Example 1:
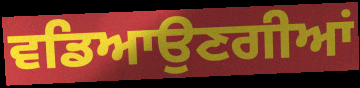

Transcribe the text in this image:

ਵਡਿਆਉਣਗੀਆਂ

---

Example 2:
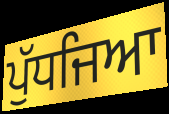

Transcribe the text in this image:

ਪੁੱਧਜਿਆ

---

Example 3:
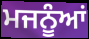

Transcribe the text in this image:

ਮਜਨੂੰਆਂ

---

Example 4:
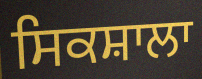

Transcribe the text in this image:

ਸਿਕਸ਼ਾਲਾ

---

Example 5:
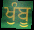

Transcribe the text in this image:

ਖੁੰਬੂ